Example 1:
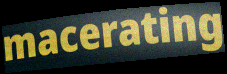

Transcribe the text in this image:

macerating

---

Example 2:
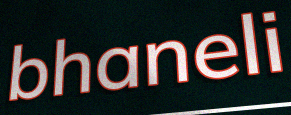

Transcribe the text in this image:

bhaneli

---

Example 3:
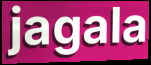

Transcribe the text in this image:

jagala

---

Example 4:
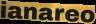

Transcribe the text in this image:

ianareo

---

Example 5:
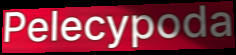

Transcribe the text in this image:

Pelecypoda